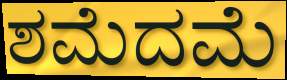
ಶಮೆದಮೆ